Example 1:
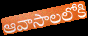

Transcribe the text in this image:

ఆవాసాలలోకి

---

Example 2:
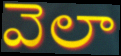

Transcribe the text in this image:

వెలా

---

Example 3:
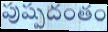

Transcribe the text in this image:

పుష్పదంతం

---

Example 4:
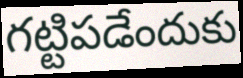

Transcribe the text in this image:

గట్టిపడేందుకు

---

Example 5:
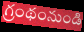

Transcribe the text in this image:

గ్రంథంనుండి